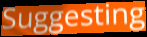
Suggesting